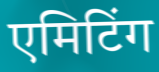
एमिटिंग